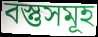
বস্তুসমূহ